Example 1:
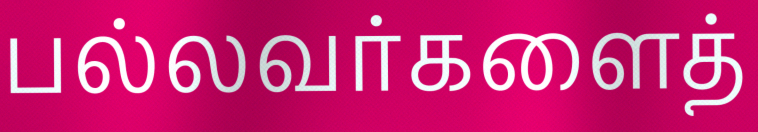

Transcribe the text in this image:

பல்லவர்களைத்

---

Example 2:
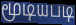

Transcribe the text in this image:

மூடியபடி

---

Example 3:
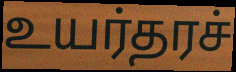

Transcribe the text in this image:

உயர்தரச்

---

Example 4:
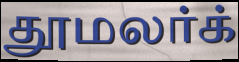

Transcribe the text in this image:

தூமலர்க்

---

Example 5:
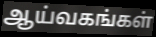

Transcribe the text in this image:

ஆய்வகங்கள்